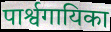
पार्श्वगायिका